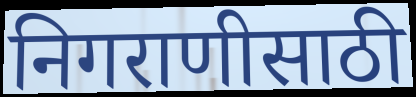
निगराणीसाठी